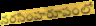
నరసింహరూపంలో